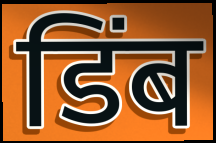
डिंब